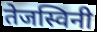
तेजस्विनी